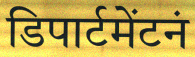
डिपार्टमेंटनं